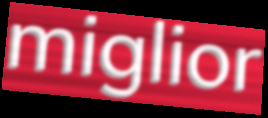
miglior